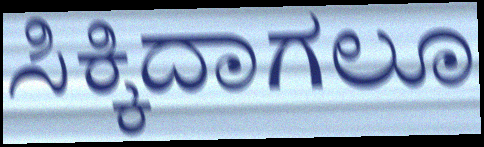
ಸಿಕ್ಕಿದಾಗಲೂ